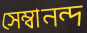
সেম্বানন্দ